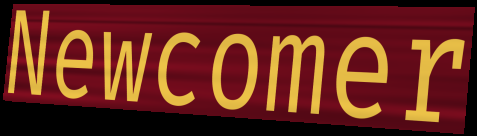
Newcomer